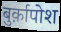
बुर्क़ापोश